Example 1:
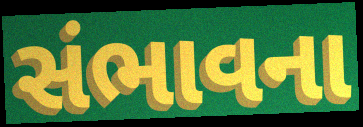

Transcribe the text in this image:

સંભાવના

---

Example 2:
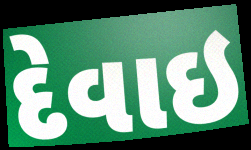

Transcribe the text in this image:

દેવાઇ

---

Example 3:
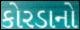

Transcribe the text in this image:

કોરડાનો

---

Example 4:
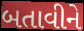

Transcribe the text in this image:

બતાવીને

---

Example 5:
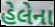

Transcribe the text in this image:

હેલેના